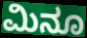
ಮಿನೂ